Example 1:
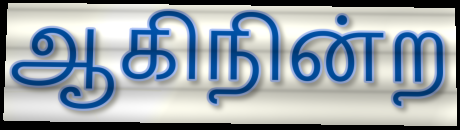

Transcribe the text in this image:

ஆகிநின்ற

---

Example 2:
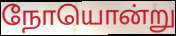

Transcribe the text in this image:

நோயொன்று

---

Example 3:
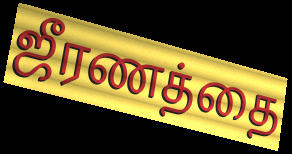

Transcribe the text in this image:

ஜீரணத்தை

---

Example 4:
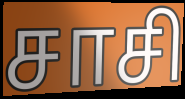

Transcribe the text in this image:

சாசி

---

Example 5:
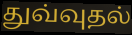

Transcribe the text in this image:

துவ்வுதல்